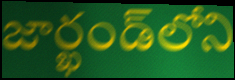
జార్ఖండ్‌లోని